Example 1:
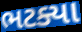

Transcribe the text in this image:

ભટક્યા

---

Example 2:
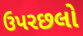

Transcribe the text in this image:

ઉપરછલો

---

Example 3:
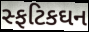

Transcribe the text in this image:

સ્ફટિકઘન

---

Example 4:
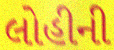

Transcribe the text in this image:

લોહીની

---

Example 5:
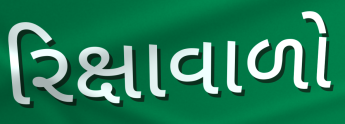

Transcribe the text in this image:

રિક્ષાવાળો